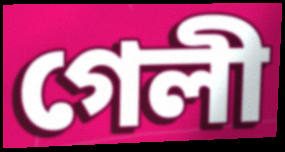
গেলী